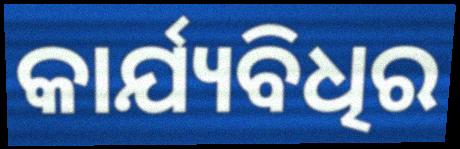
କାର୍ଯ୍ୟବିଧିର